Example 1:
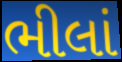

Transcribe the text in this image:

ભીલાં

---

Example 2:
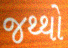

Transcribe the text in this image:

જથ્થો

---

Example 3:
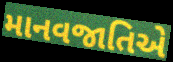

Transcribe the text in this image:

માનવજાતિએ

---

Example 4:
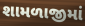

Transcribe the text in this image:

શામળાજીમાં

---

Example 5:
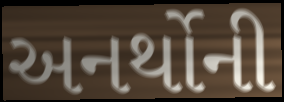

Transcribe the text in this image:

અનર્થોની